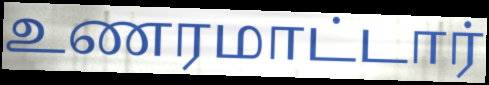
உணரமாட்டார்